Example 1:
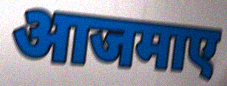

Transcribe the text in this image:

आजमाए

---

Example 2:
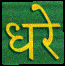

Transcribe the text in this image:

धरे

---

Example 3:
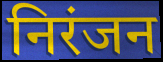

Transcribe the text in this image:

निरंजन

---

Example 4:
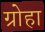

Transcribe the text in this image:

ग्रोहा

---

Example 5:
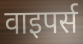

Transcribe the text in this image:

वाइपर्स